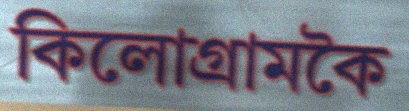
কিলোগ্ৰামকৈ